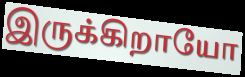
இருக்கிறாயோ